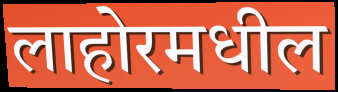
लाहोरमधील